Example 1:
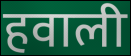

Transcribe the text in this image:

हवाली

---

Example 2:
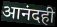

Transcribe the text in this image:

आनंदही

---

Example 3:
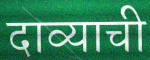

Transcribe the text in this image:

दाव्याची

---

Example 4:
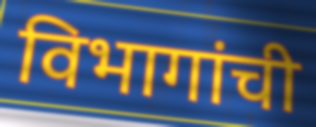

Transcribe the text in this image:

विभागांची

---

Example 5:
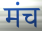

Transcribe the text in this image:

मंच